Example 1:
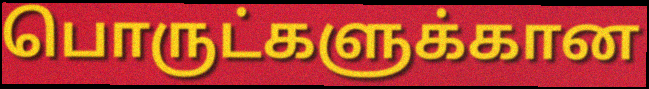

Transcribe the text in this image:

பொருட்களுக்கான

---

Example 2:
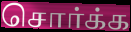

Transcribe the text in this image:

சொர்க்க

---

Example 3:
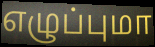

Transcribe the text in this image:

எழுப்புமா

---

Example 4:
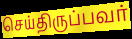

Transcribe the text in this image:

செய்திருப்பவர்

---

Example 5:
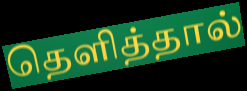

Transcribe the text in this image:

தெளித்தால்